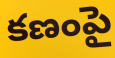
కణంపై